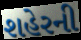
શહેરની